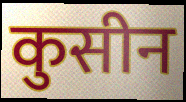
कुसीन